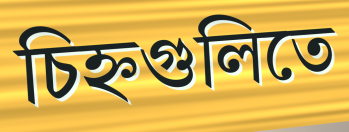
চিহ্নগুলিতে